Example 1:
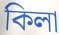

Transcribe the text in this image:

কিলা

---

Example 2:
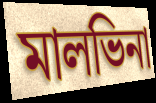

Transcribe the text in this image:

মালভিনা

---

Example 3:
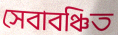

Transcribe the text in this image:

সেবাবঞ্চিত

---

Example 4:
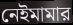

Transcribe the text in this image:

নেইমামার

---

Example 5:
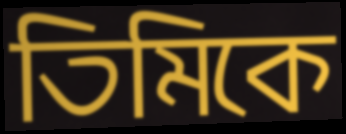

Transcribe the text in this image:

তিমিকে